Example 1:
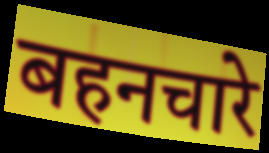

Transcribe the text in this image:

बहनचारे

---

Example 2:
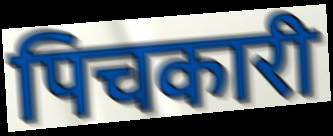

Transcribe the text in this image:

पिचकारी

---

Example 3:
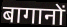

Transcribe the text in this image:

बागानों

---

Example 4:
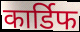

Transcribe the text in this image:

कार्डिफ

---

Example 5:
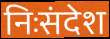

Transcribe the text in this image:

निःसंदेश